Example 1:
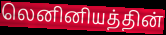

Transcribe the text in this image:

லெனினியத்தின்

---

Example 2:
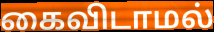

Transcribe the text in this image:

கைவிடாமல்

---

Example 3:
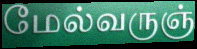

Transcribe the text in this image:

மேல்வருஞ்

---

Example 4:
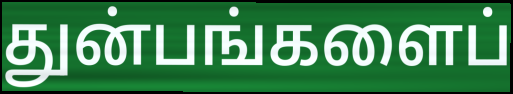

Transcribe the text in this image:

துன்பங்களைப்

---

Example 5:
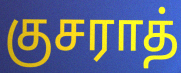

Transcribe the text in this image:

குசராத்